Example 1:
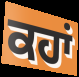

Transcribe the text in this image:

ਕਹਾਂ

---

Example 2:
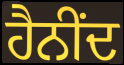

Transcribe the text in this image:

ਹੈਨੀਂਦ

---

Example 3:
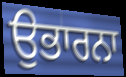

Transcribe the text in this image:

ਉਭਾਰਨਾ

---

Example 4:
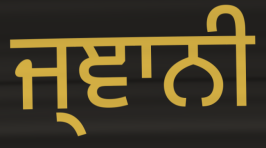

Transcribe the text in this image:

ਜ੍ਞਾਨੀ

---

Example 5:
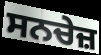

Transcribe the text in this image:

ਸਨਚੇਜ਼